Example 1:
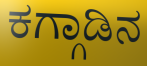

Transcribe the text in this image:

ಕಗ್ಗಾಡಿನ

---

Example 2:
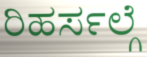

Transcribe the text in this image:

ರಿಹರ್ಸಲ್ಗೆ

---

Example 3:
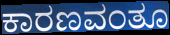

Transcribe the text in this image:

ಕಾರಣವಂತೂ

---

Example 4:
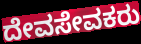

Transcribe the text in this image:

ದೇವಸೇವಕರು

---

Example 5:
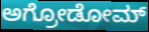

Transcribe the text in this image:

ಅಗ್ರೋಡೋಮ್